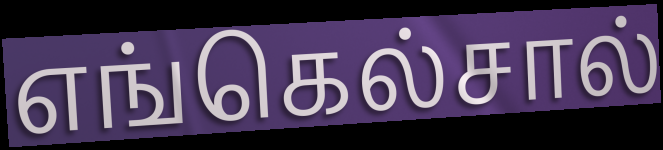
எங்கெல்சால்